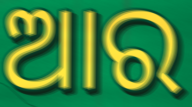
ଆର